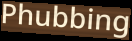
Phubbing